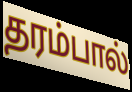
தரம்பால்